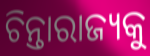
ଚିନ୍ତାରାଜ୍ୟକୁ